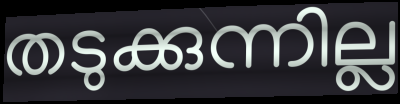
തടുക്കുന്നില്ല